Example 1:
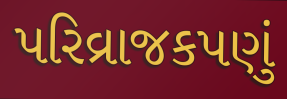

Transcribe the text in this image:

પરિવ્રાજકપણું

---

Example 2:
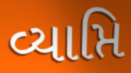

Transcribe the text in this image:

વ્યાપ્તિ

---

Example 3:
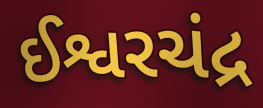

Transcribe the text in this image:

ઈશ્વરચંદ્ર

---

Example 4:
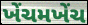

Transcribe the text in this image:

ખેંચમખેંચ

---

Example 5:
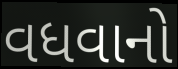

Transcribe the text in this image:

વધવાનો